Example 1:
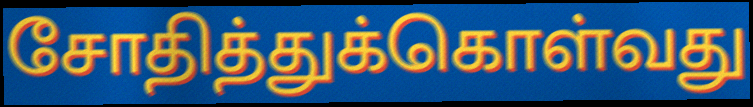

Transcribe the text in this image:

சோதித்துக்கொள்வது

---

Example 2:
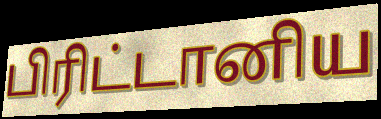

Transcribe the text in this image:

பிரிட்டானிய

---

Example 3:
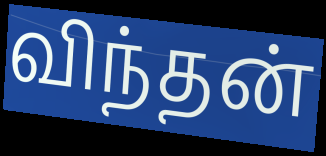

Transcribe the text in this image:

விந்தன்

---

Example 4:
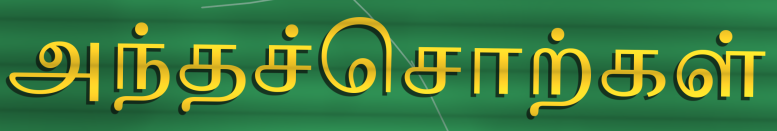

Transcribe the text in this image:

அந்தச்சொற்கள்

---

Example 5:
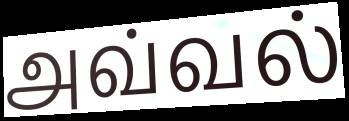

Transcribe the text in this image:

அவ்வல்